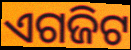
ଏଗଜିଟ